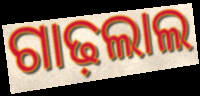
ଗାଢ଼ଲାଲ